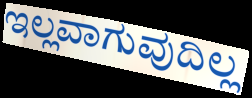
ಇಲ್ಲವಾಗುವುದಿಲ್ಲ